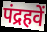
पंद्रहवें